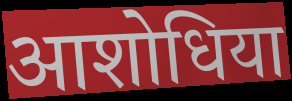
आशोधिया